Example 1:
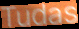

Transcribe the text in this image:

Tudas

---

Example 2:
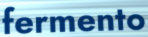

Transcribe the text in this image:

fermento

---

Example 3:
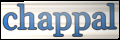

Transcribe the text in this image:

chappal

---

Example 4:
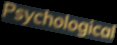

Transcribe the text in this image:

Psychological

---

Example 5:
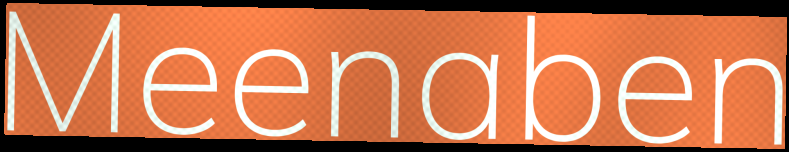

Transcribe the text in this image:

Meenaben